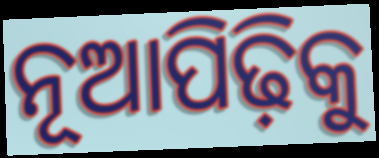
ନୂଆପିଢ଼ିକୁ